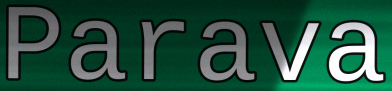
Parava